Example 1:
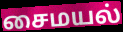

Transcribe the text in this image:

சைமயல்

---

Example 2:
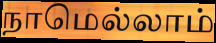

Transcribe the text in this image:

நாமெல்லாம்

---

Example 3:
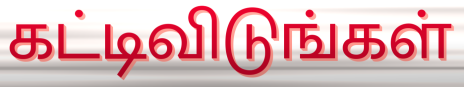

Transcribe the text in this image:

கட்டிவிடுங்கள்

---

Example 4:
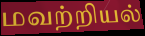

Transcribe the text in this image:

மவற்றியல்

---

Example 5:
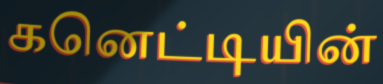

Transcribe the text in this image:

கனெட்டியின்